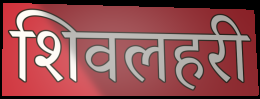
शिवलहरी